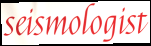
seismologist